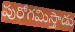
పురోగమిస్తాడు